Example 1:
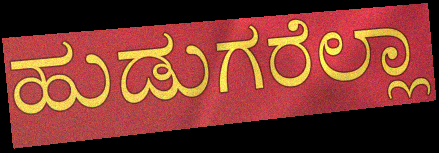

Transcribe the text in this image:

ಹುಡುಗರೆಲ್ಲಾ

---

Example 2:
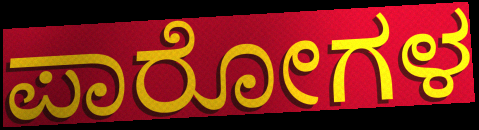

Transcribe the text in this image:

ಪಾರೋಗಳ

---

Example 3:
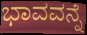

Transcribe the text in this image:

ಭಾವವನ್ನೆ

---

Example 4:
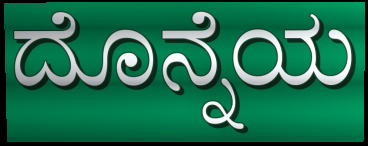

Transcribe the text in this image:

ದೊನ್ನೆಯ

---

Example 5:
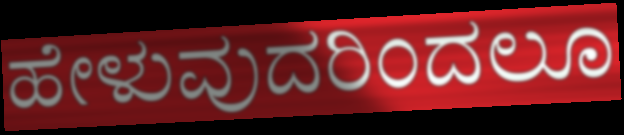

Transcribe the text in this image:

ಹೇಳುವುದರಿಂದಲೂ